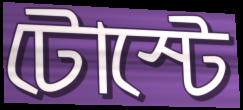
টোস্টে